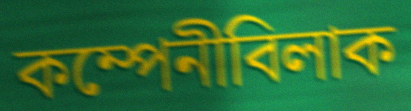
কম্পেনীবিলাক